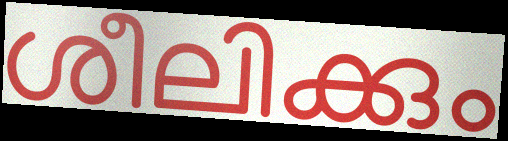
ശീലിക്കും